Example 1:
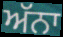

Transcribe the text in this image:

ਅੱਨਾ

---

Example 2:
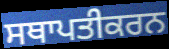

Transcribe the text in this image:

ਸਥਾਪਤੀਕਰਨ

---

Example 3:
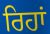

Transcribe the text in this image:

ਰਿਹਾਂ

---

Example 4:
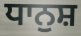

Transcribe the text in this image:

ਧਾਨੁਸ਼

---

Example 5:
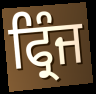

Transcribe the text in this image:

ਫ੍ਰਿੰਜ